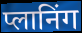
प्‍लानिंग